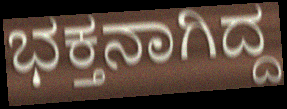
ಭಕ್ತನಾಗಿದ್ದ